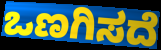
ಒಣಗಿಸದೆ